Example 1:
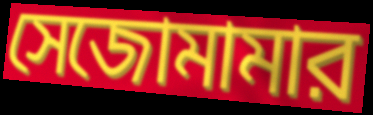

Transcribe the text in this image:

সেজোমামার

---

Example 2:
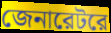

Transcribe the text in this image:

জেনারেটরে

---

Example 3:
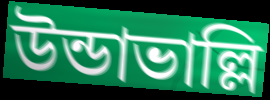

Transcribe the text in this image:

উন্ডাভাল্লি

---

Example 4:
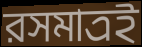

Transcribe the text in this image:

রসমাত্রই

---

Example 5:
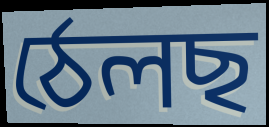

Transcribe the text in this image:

ঠেলছ